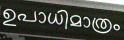
ഉപാധിമാത്രം